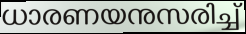
ധാരണയനുസരിച്ച്